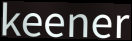
keener